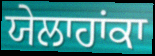
ਯੇਲਾਹਾਂਕਾ